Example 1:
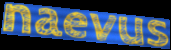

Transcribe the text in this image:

naevus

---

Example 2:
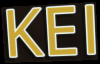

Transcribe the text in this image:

KEI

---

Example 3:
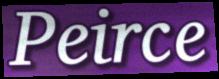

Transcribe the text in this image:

Peirce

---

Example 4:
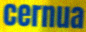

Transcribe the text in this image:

cernua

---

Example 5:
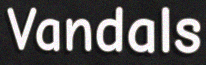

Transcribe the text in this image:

Vandals